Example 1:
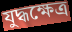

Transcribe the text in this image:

যুদ্ধক্ষেত্র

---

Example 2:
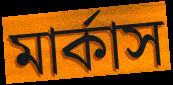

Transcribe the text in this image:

মার্কাস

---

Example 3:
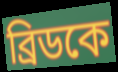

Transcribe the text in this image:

ব্রিডকে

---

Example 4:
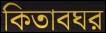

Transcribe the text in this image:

কিতাবঘর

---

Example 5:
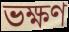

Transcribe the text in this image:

ভক্ষণ